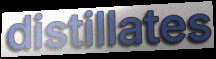
distillates